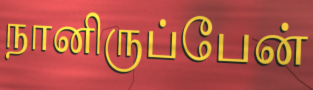
நானிருப்பேன்